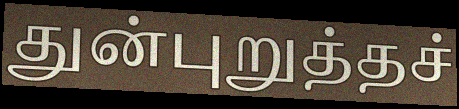
துன்புறுத்தச்